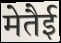
मेतैई